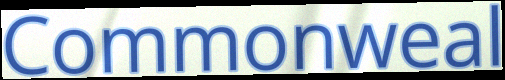
Commonweal